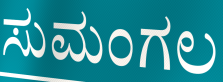
ಸುಮಂಗಲ